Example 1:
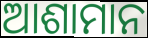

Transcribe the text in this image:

ଆଶାମାନ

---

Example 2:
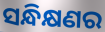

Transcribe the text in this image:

ସନ୍ଧିକ୍ଷଣର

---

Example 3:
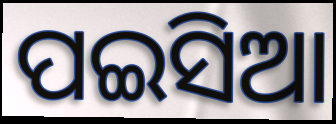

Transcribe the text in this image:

ପଇସିଆ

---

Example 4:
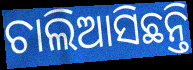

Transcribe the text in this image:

ଚାଲିଆସିଛନ୍ତି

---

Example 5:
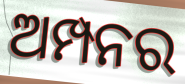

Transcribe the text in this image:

ଅମ୍ପନର